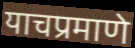
याचप्रमाणे